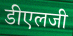
डीएलजी